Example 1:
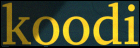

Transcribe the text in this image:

koodi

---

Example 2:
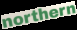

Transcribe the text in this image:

northern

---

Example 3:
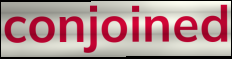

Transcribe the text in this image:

conjoined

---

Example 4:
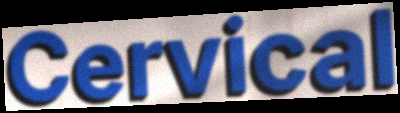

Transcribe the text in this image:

Cervical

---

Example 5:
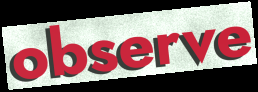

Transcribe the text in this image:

observe